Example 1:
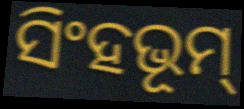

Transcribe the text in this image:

ସିଂହଭୂମ୍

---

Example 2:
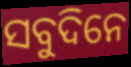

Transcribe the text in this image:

ସବୁଦିନେ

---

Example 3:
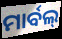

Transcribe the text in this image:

ମାର୍ବଲ୍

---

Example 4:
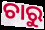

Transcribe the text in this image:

ଚାରୁ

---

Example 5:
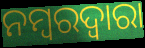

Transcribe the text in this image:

ନମ୍ବରଦ୍ୱାରା